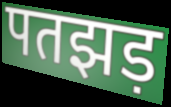
पतझड़